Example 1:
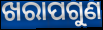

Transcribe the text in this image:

ଖରାପଗୁଣ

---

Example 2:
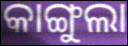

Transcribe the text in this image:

କାଙ୍ଗୁଲା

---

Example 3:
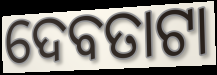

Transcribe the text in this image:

ଦେବତାଟା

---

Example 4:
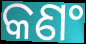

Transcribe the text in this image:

କଣଂ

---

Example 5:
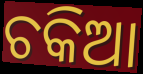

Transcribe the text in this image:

ଚକିଆ